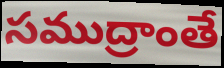
సముద్రాంతే